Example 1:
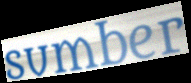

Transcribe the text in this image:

sumber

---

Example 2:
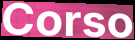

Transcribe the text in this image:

Corso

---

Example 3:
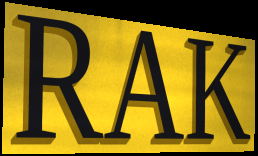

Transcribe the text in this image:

RAK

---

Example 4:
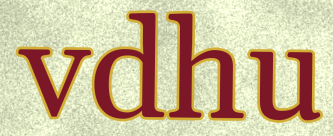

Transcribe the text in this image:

vdhu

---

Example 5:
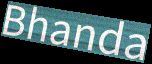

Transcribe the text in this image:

Bhanda